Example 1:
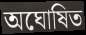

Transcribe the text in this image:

অঘোষিত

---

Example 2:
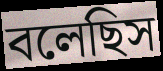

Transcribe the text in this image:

বলেছিস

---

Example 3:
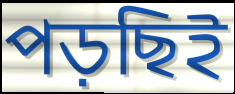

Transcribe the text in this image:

পড়ছিই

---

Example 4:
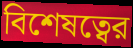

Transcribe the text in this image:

বিশেষত্বের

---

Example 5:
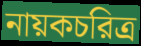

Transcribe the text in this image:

নায়কচরিত্র